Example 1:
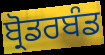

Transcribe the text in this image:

ਬ੍ਰੋਡਰਬੰਡ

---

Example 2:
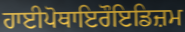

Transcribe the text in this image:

ਹਾਈਪੋਥਾਇਰੌਇਡਿਜ਼ਮ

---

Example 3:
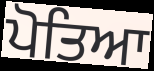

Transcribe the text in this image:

ਪੋਤਿਆ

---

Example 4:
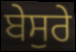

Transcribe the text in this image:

ਬੇਸੁਰੇ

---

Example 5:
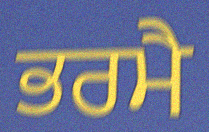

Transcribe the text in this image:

ਭਰਮੈ